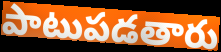
పాటుపడతారు